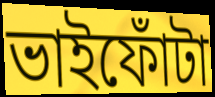
ভাইফোঁটা